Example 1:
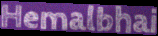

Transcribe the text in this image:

Hemalbhai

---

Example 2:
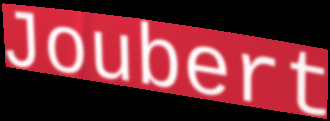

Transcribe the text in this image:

Joubert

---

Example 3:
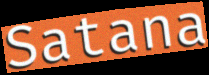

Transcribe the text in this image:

Satana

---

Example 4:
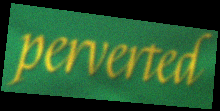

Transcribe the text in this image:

perverted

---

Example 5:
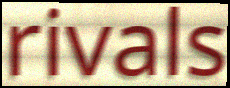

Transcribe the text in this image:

rivals